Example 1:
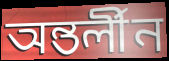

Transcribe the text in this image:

অন্তর্লীন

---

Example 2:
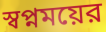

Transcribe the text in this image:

স্বপ্নময়ের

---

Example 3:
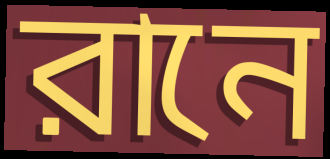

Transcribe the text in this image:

রানে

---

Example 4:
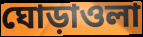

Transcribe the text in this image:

ঘোড়াওলা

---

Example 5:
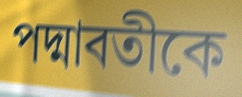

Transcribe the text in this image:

পদ্মাবতীকে